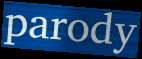
parody